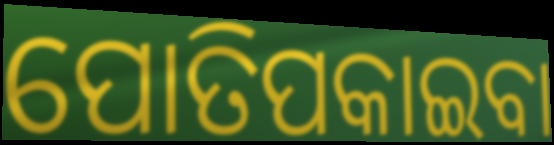
ପୋତିପକାଇବା